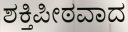
ಶಕ್ತಿಪೀಠವಾದ